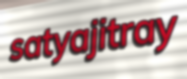
satyajitray